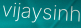
vijaysinh